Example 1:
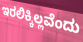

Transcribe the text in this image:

ಇರಲಿಕ್ಕಿಲ್ಲವೆಂದು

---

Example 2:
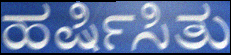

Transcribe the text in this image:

ಹರ್ಷಿಸಿತು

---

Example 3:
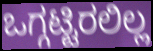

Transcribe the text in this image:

ಒಗ್ಗಟ್ಟಿರಲಿಲ್ಲ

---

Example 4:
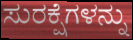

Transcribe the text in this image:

ಸುರಕ್ಷೆಗಳನ್ನು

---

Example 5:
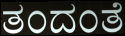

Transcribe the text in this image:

ತಂದಂತೆ